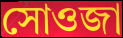
সোওজা